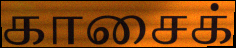
காசைக்